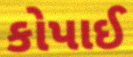
કોપાઈ